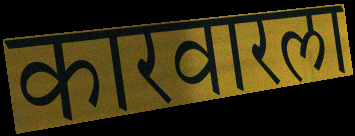
कारवारला